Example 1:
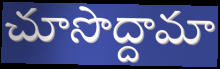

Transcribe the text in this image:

చూసొద్దామా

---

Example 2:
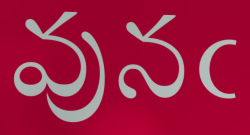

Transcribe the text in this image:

వునఁ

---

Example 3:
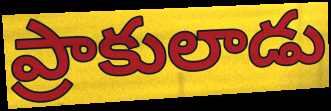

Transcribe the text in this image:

ప్రాకులాడు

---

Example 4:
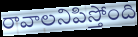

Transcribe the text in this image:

రావాలనిపిస్తోంది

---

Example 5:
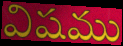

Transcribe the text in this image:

విషము